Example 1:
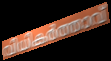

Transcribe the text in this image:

വിധികർത്താവ്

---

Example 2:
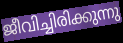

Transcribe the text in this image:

ജീവിച്ചിരിക്കുന്നു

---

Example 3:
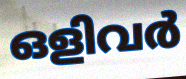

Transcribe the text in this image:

ഒളിവർ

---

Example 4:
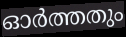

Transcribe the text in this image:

ഓർത്തതും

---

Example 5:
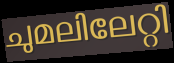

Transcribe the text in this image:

ചുമലിലേറ്റി